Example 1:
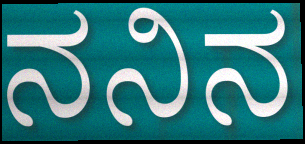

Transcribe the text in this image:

ನನಿನ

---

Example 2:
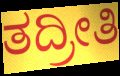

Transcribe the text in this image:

ತದ್ರೀತಿ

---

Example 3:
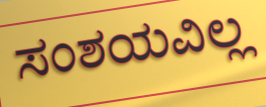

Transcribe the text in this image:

ಸಂಶಯವಿಲ್ಲ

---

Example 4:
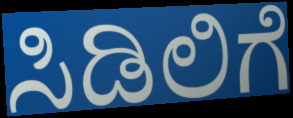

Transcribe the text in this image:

ಸಿಡಿಲಿಗೆ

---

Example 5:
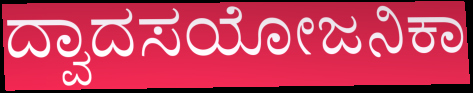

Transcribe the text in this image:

ದ್ವಾದಸಯೋಜನಿಕಾ